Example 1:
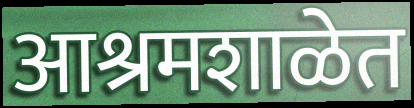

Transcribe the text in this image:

आश्रमशाळेत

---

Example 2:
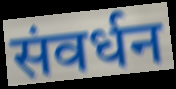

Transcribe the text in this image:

संवर्धन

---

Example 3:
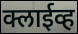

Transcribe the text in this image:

क्लाईव्ह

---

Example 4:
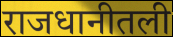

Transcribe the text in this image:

राजधानीतली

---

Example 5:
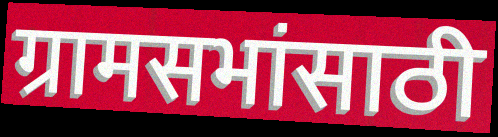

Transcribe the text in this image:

ग्रामसभांसाठी